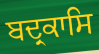
ਬਦ੍ਰਕਾਸਿ